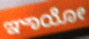
ಞಾಯೋ